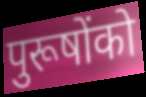
पुरूषोंको